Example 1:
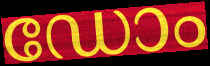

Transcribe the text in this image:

ഡോം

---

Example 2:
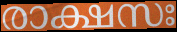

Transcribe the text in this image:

രാക്ഷസഃ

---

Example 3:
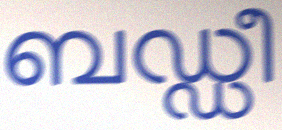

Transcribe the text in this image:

ബഡ്ഡീ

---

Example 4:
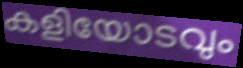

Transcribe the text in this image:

കളിയോടവും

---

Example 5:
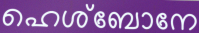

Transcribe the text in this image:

ഹെശ്ബോനേ